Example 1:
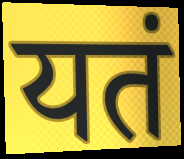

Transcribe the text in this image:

यतं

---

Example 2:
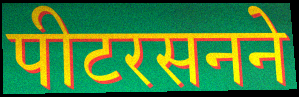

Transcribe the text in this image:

पीटरसनने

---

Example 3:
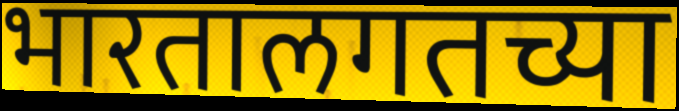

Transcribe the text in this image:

भारतालगतच्या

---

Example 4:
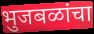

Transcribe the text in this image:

भुजबळांचा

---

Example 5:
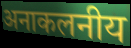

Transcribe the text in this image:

अनाकलनीय